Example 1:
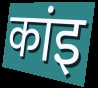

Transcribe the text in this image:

कांइ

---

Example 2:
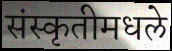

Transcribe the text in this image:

संस्कृतीमधले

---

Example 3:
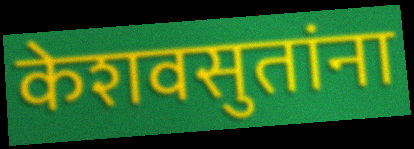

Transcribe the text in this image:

केशवसुतांना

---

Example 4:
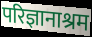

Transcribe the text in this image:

परिज्ञानाश्रम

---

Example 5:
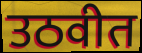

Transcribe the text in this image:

उठवीत